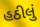
હઠીલું